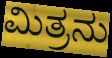
ಮಿತ್ರನು